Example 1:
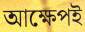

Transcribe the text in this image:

আক্ষেপই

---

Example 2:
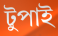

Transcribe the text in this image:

টুপাই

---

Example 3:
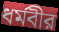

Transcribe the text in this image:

ধর্মবীর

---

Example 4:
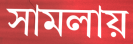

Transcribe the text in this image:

সামলায়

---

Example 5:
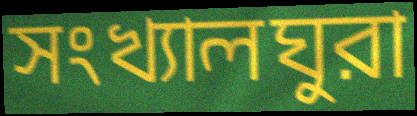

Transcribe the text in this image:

সংখ্যালঘুরা